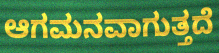
ಆಗಮನವಾಗುತ್ತದೆ